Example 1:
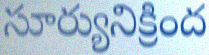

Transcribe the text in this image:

సూర్యునిక్రింద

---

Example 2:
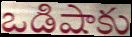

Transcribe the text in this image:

ఒడిషాకు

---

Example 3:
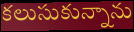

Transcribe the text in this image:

కలుసుకున్నాను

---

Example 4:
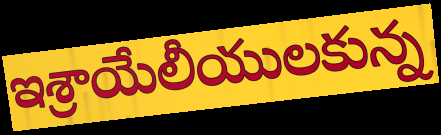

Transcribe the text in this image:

ఇశ్రాయేలీయులకున్న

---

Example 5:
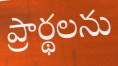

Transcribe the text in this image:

ప్రార్థలను